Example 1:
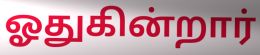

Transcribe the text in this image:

ஓதுகின்றார்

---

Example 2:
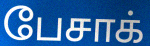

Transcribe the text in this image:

பேசாக்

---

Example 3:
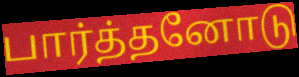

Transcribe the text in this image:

பார்த்தனோடு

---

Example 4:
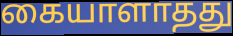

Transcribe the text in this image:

கையாளாதது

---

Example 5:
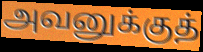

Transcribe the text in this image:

அவனுக்குத்